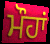
ਮੌਹਾਂ